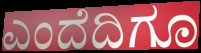
ಎಂದೆದಿಗೂ